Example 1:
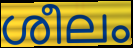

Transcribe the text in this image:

ശീലം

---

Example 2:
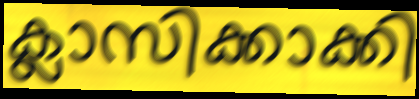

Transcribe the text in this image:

ക്ലാസിക്കാക്കി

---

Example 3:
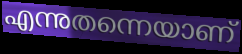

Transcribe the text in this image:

എന്നുതന്നെയാണ്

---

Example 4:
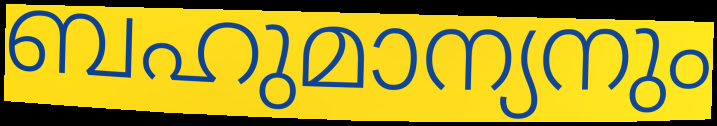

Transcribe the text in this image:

ബഹുമാന്യനും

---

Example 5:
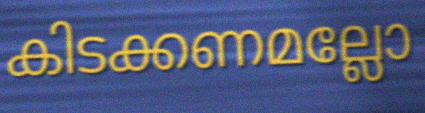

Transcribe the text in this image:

കിടക്കണമല്ലോ